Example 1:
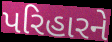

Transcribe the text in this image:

પરિહારને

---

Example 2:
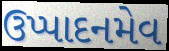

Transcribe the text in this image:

ઉપ્પાદનમેવ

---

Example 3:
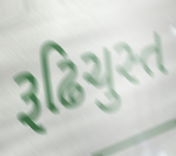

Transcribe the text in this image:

રૂઢિચુસ્ત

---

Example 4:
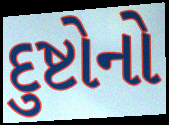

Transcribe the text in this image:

દુષ્ટોનો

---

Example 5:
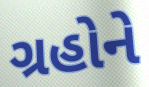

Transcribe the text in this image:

ગ્રહોને